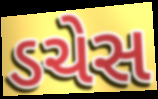
ડચેસ